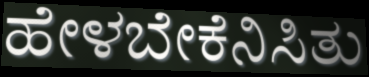
ಹೇಳಬೇಕೆನಿಸಿತು